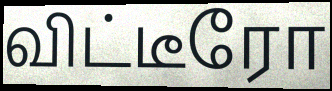
விட்டீரோ